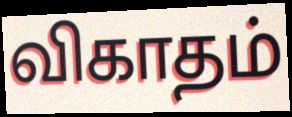
விகாதம்